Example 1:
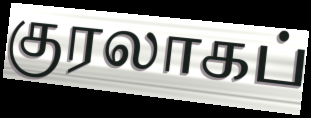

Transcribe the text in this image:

குரலாகப்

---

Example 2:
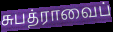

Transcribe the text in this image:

சுபத்ராவைப்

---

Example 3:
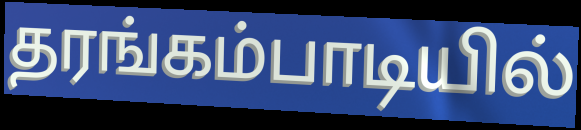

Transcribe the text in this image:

தரங்கம்பாடியில்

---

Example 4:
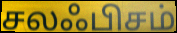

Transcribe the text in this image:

சலஃபிசம்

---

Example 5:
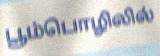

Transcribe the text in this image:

பூம்பொழிலில்